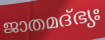
ജാതമദ്ഭ്യഃ